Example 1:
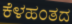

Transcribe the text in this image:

ಕೆಳಹಂತದ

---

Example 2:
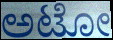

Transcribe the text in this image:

ಅಟೋ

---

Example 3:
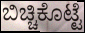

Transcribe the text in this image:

ಬಿಚ್ಚಿಕೊಟ್ಟೆ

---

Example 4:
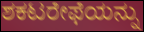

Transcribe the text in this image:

ಶಕಟರೇಫೆಯನ್ನು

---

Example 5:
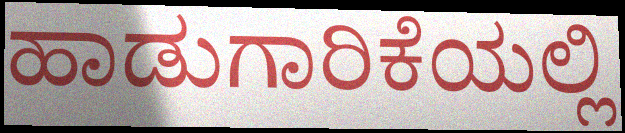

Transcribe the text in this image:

ಹಾಡುಗಾರಿಕೆಯಲ್ಲಿ